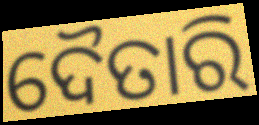
ଦୈତାରି